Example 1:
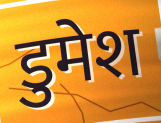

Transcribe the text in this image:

डुमेश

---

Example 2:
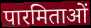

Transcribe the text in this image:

पारमिताओं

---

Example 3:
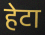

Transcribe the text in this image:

हेटा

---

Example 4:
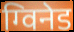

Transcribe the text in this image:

ग्विनेड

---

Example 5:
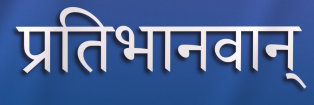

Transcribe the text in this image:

प्रतिभानवान्